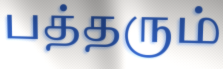
பத்தரும்